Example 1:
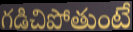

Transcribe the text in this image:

గడిచిపోతుంటే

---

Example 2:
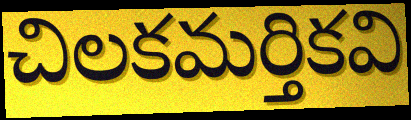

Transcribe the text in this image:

చిలకమర్తికవి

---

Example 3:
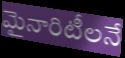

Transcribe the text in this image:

మైనారిటీలనే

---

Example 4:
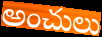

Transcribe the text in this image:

అంచులు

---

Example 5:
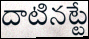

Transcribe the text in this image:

దాటినట్టే